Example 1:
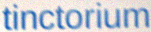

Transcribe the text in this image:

tinctorium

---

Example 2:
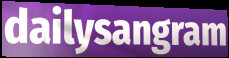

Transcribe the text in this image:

dailysangram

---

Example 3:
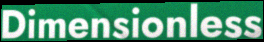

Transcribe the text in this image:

Dimensionless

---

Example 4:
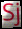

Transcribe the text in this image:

Sj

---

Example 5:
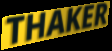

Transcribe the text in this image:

THAKER